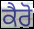
ਕੈਰੋ